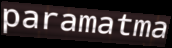
paramatma